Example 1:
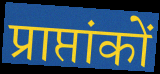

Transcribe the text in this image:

प्राप्तांकों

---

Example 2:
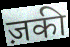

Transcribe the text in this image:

ज़की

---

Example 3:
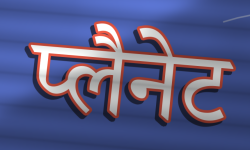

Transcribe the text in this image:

प्लैनेट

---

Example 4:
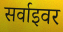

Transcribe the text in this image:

सर्वाइवर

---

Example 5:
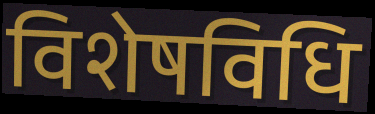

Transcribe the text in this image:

विशेषविधि